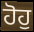
ਹੋਹੁ